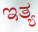
ಇತ್ಯ